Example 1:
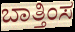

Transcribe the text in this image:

ಬಾತ್ತಿಂಸ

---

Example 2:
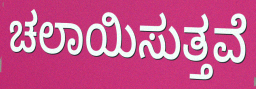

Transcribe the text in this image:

ಚಲಾಯಿಸುತ್ತವೆ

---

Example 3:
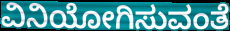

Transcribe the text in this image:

ವಿನಿಯೋಗಿಸುವಂತೆ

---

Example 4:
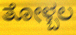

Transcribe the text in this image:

ತೋಳ್ಬಲ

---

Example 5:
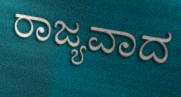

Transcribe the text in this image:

ರಾಜ್ಯವಾದ